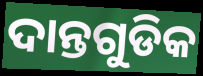
ଦାନ୍ତଗୁଡିକ